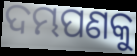
ଦମ୍ଭପଣକୁ